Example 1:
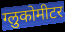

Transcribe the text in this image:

ग्लुकोमीटर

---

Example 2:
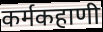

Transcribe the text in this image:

कर्मकहाणी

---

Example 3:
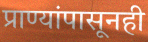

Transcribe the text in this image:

प्राण्यांपासूनही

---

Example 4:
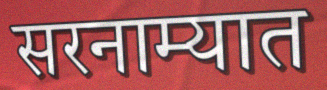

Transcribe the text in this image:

सरनाम्यात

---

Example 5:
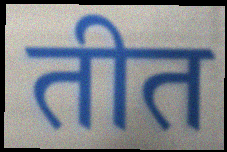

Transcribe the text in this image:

तीत